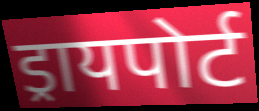
ड्रायपोर्ट